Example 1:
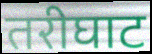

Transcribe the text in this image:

तरीघाट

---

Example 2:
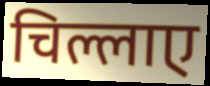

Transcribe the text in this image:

चिल्लाए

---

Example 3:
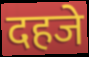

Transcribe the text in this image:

दहजे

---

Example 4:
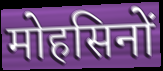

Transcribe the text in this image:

मोहसिनों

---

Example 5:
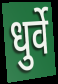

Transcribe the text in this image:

धुर्वे